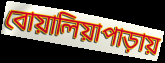
বোয়ালিয়াপাড়ায়